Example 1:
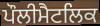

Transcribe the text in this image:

ਪੌਲੀਮੈਟਲਿਕ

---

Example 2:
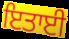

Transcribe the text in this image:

ਇਤਾਈ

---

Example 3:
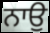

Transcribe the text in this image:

ਨਾਉ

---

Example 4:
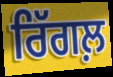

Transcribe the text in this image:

ਰਿੱਗਲ਼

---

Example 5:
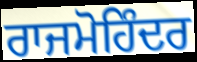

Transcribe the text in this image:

ਰਾਜਮੋਹਿੰਦਰ